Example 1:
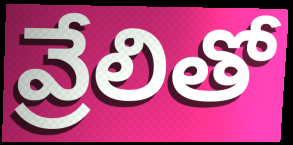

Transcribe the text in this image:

వ్రేలితో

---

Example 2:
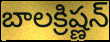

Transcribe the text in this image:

బాలక్రిష్ణన్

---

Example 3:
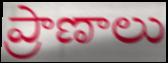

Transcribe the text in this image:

ప్రాణాలు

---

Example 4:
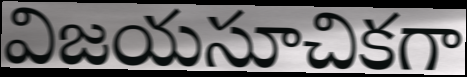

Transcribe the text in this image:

విజయసూచికగా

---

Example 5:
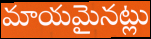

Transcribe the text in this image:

మాయమైనట్లు